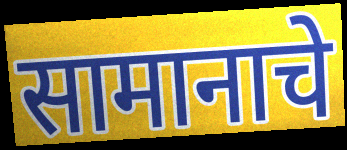
सामानाचे